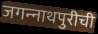
जगन्नाथपुरीची